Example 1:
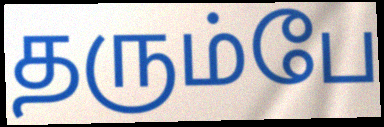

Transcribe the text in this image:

தரும்பே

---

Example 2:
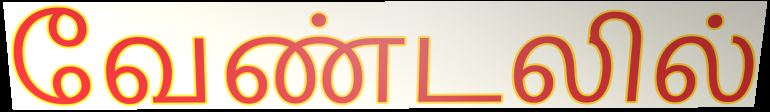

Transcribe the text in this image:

வேண்டலில்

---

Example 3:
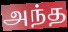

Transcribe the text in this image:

அந்த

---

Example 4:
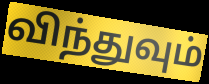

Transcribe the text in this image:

விந்துவும்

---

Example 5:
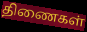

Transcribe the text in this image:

திணைகள்